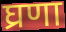
घ्रणा